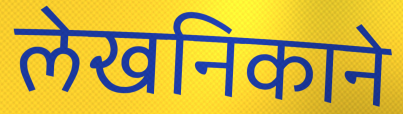
लेखनिकाने